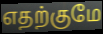
எதற்குமே